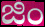
జిం